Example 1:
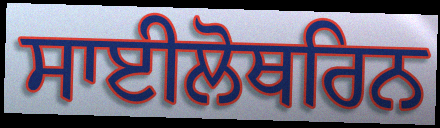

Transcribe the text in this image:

ਸਾਈਲੋਥਰਿਨ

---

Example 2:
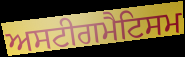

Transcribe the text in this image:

ਅਸਟੀਗਮੈਟਿਸਮ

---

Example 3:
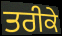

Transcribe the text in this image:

ਤਰੀਕੇ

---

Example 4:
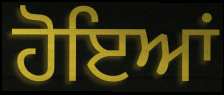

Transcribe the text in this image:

ਹੋਇਆਂ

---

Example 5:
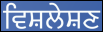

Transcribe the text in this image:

ਵਿਸ਼ਲੇਸ਼ਣ